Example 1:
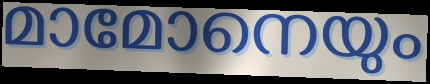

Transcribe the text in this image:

മാമോനെയും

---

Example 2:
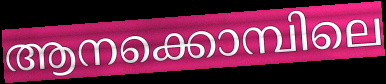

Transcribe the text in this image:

ആനക്കൊമ്പിലെ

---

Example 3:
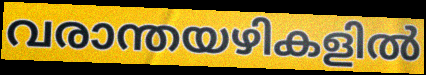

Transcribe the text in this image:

വരാന്തയഴികളിൽ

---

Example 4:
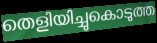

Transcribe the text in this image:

തെളിയിച്ചുകൊടുത്ത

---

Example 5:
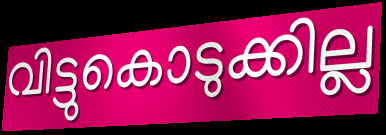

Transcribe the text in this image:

വിട്ടുകൊടുക്കില്ല